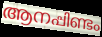
ആനപ്പിണ്ടം